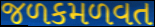
જળકમળવત